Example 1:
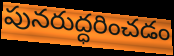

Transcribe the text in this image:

పునరుద్ధరించడం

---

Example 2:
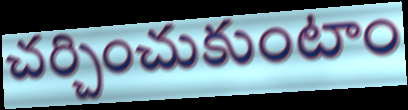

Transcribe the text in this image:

చర్చించుకుంటాం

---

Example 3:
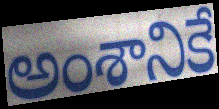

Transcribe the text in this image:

అంశానికే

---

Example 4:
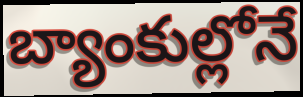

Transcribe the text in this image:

బ్యాంకుల్లోనే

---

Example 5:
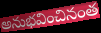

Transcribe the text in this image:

అనుభవించినంత